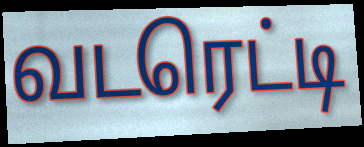
வடரெட்டி